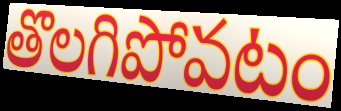
తొలగిపోవటం